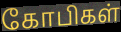
கோபிகள்